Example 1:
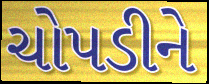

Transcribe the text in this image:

ચોપડીને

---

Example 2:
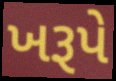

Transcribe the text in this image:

ખરૂપે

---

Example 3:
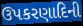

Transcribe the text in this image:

ઉપકરણાદિની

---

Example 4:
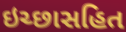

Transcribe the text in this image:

ઇચ્છાસહિત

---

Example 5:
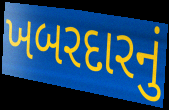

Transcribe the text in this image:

ખબરદારનું